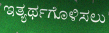
ಇತ್ಯರ್ಥಗೊಳಿಸಲು